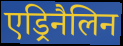
एड्रिनैलिन